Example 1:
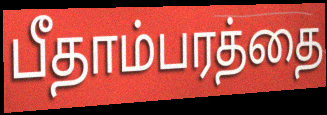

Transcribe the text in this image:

பீதாம்பரத்தை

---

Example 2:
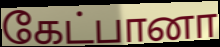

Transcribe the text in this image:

கேட்பானா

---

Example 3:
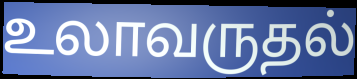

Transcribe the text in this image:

உலாவருதல்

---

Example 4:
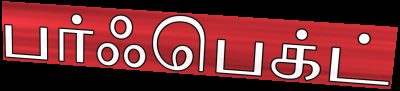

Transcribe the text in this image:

பர்ஃபெக்ட்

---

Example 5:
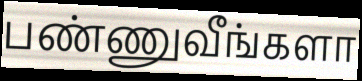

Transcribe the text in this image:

பண்ணுவீங்களா